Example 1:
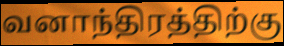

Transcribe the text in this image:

வனாந்திரத்திற்கு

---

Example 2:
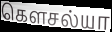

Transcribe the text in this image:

கௌசல்யா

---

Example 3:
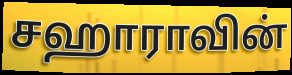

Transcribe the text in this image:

சஹாராவின்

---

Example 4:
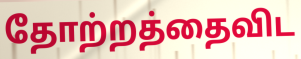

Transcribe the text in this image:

தோற்றத்தைவிட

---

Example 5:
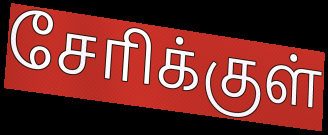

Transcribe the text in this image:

சேரிக்குள்